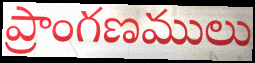
ప్రాంగణములు